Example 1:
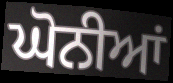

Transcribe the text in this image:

ਘੋਨੀਆਂ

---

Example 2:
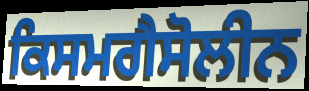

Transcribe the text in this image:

ਕਿਸਮਗੈਸੋਲੀਨ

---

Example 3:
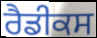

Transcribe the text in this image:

ਰੈਡੀਕਸ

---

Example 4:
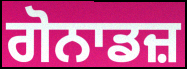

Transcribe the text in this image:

ਗੋਨਾਡਜ਼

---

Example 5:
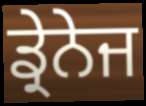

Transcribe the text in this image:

ਡ੍ਰੇਨੇਜ